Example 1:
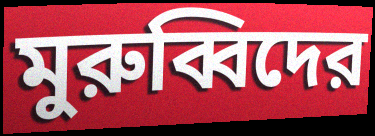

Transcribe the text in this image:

মুরুব্বিদের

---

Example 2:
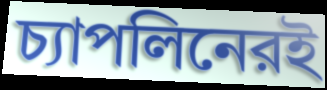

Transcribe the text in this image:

চ্যাপলিনেরই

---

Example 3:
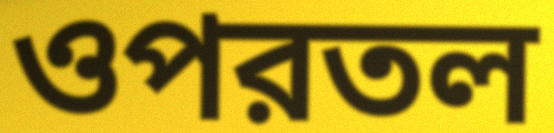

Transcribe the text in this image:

ওপরতল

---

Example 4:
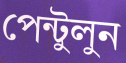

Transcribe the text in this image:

পেন্টুলুন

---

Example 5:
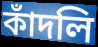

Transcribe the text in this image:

কাঁদলি